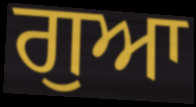
ਗੁਆ